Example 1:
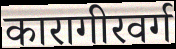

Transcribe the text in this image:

कारागीरवर्ग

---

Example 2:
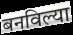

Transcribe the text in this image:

बनविल्या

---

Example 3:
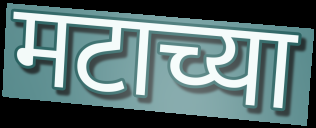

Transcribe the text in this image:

मटाच्या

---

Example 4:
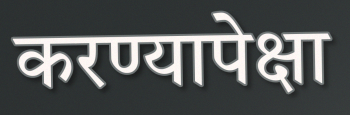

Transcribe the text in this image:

करण्यापेक्षा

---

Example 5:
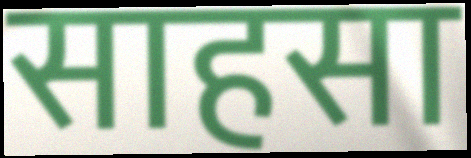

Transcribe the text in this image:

साहसा